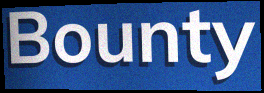
Bounty